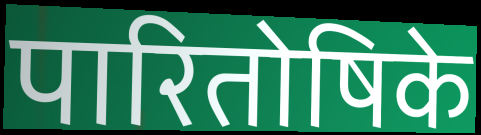
पारितोषिके